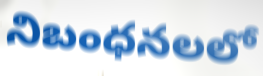
నిబంధనలలో